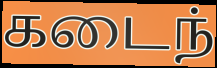
கடைந்